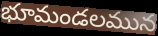
భూమండలమున